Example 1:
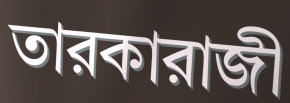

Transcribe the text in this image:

তারকারাজী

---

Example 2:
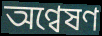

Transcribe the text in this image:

অণ্বেষণ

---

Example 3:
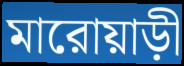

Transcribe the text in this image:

মারোয়াড়ী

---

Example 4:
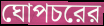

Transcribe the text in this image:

ঘোপচরের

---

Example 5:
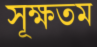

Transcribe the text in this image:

সূক্ষতম